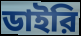
ডাইরি